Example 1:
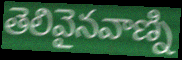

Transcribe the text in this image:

తెలివైనవాణ్ని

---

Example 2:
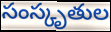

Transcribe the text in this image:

సంస్కృతుల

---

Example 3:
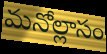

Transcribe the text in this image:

మనోల్లాసం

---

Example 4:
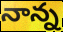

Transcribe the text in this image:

నాన్న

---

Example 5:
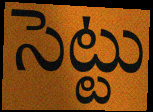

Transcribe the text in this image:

సెట్టు